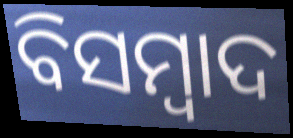
ବିସମ୍ୱାଦ